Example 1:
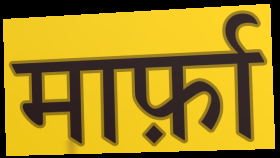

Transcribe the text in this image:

मार्फ़ा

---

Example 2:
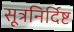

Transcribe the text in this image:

सूत्रनिर्दिष्ट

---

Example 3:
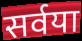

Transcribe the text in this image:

सर्वया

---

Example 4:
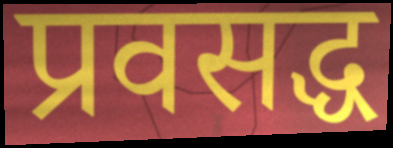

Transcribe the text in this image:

प्रवसद्ध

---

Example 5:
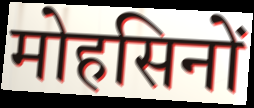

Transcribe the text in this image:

मोहसिनों